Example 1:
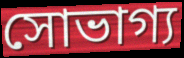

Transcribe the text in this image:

সোভাগ্য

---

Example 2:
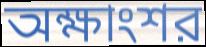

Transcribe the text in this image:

অক্ষাংশর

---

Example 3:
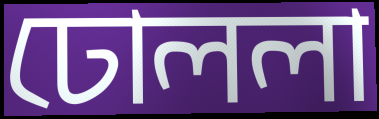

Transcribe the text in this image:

ঢোললা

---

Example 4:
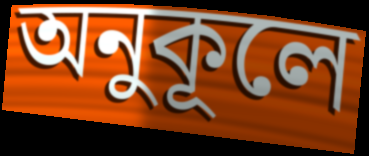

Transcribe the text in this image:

অনুকূলে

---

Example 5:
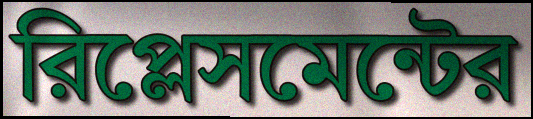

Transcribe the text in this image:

রিপ্লেসমেন্টের